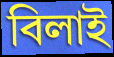
বিলাই